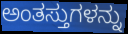
ಅಂತಸ್ತುಗಳನ್ನು